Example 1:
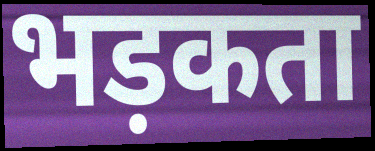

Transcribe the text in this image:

भड़कता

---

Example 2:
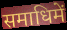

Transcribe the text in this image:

समाधिमें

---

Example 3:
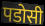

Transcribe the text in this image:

पडोसी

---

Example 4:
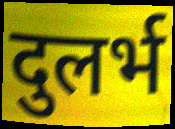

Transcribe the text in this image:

दुलर्भ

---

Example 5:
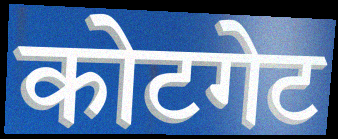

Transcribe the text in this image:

कोटगेट